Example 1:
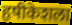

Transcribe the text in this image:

हृषीकेशला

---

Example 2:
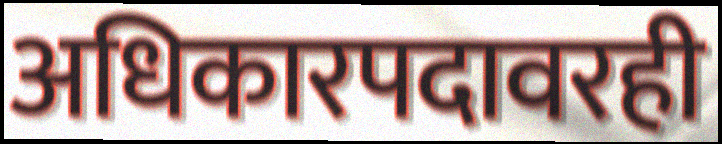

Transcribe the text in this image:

अधिकारपदावरही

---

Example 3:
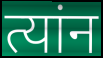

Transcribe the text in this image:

त्यांन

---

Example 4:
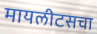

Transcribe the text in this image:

मायलीटसचा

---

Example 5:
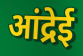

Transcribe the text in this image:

आंद्रेई